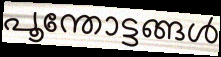
പൂന്തോട്ടങ്ങൾ